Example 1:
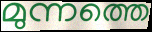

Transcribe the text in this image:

മുന്നത്തെ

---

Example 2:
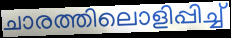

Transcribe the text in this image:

ചാരത്തിലൊളിപ്പിച്ച്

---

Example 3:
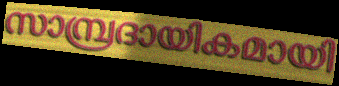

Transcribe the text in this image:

സാമ്പ്രദായികമായി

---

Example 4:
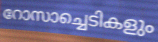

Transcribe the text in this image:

റോസാച്ചെടികളും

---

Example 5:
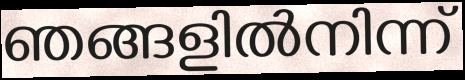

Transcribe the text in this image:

ഞങ്ങളിൽനിന്ന്